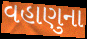
વહાણુના